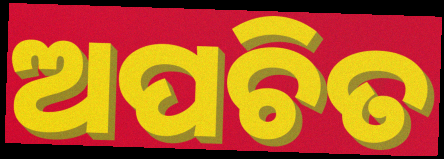
ଅପଚିତ